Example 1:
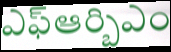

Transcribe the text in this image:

ఎఫ్ఆర్బిఎం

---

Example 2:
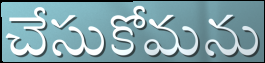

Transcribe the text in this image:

చేసుకోమను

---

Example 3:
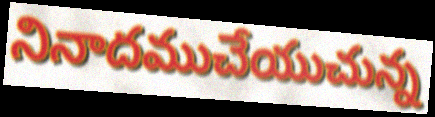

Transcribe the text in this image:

నినాదముచేయుచున్న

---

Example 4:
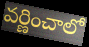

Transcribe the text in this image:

వర్ణించాలో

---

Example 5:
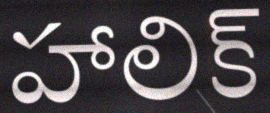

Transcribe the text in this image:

హాలిక్